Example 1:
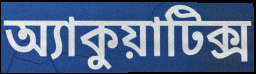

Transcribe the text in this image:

অ্যাকুয়াটিক্স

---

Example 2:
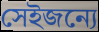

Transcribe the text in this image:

সেইজন্যে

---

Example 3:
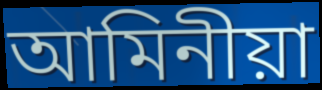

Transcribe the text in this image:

আমিনীয়া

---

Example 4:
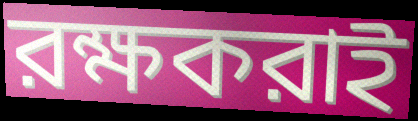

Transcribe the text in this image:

রক্ষকরাই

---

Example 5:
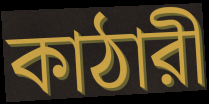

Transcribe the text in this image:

কাঠারী